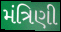
મંત્રિણી